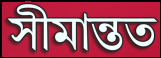
সীমান্তত